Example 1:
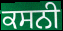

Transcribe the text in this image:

ਕਸਨੀ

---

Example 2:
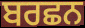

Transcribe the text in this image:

ਬਰਛਨ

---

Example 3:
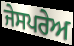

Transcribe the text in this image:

ਜੇਸਪਰੇਅ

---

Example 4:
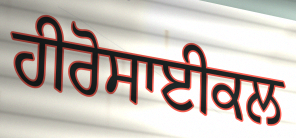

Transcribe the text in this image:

ਹੀਰੋਸਾਈਕਲ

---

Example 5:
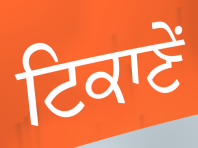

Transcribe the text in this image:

ਟਿਕਾਣੇਂ